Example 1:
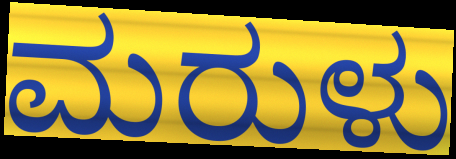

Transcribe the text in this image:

ಮರುಳು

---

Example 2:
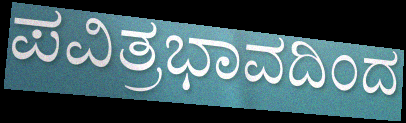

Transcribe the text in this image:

ಪವಿತ್ರಭಾವದಿಂದ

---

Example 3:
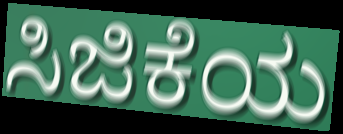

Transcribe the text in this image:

ಸಿಜಿಕೆಯ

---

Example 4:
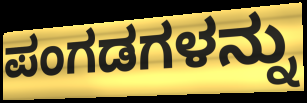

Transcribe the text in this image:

ಪಂಗಡಗಳನ್ನು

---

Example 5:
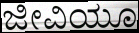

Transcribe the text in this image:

ಜೀವಿಯೂ